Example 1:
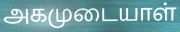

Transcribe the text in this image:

அகமுடையாள்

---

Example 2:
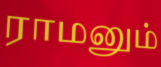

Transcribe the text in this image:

ராமனும்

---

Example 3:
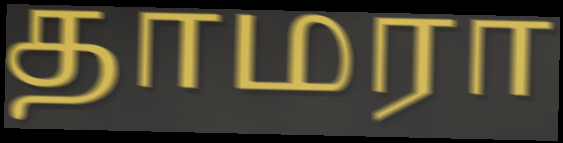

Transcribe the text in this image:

தாமரா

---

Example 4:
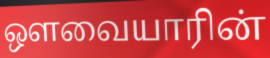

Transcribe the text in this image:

ஔவையாரின்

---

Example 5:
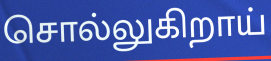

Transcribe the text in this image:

சொல்லுகிறாய்